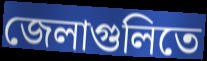
জেলাগুলিতে